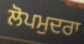
ਲੋਪਮੁਦਰਾ